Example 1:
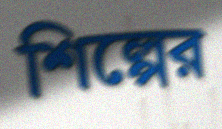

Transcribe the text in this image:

শিল্পের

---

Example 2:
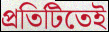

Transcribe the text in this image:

প্রতিটিতেই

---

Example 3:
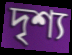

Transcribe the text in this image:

দৃশ্য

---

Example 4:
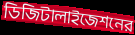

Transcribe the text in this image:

ডিজিটালাইজেশনের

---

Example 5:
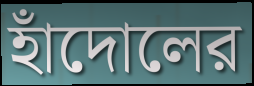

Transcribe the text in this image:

হাঁদোলের